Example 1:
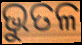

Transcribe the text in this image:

ଭୁତଳ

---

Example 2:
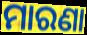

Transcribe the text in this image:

ମାରଣା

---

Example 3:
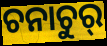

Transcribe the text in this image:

ଚନାଚୁର୍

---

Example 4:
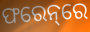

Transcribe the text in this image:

ଫରେନ୍‌ରେ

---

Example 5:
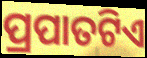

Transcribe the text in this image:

ପ୍ରପାତଟିଏ